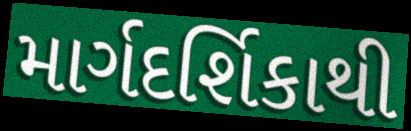
માર્ગદર્શિકાથી